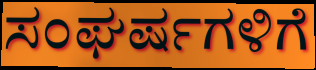
ಸಂಘರ್ಷಗಳಿಗೆ